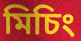
মিচিং